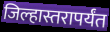
जिल्हास्तरापर्यंत